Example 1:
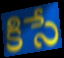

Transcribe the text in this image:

కిసే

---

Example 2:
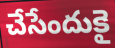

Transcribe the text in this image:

చేసేందుకై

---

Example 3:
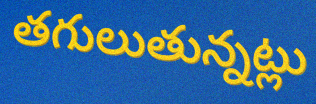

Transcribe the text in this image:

తగులుతున్నట్లు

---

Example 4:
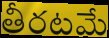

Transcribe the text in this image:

తీరటమే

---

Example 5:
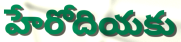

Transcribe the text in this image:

హేరోదియకు